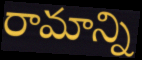
రామాన్ని